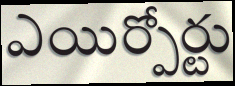
ఎయిర్పోర్టు